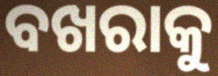
ବଖରାକୁ